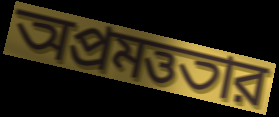
অপ্রমত্ততার